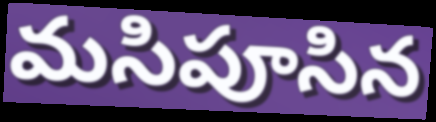
మసిపూసిన